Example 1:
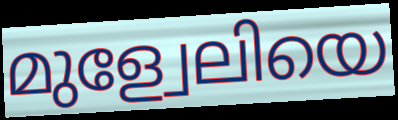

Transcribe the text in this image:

മുള്വേലിയെ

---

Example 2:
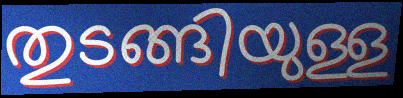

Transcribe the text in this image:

തുടങ്ങിയുള്ള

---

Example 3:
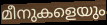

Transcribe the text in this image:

മീനുകളെയും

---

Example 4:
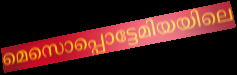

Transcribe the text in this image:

മെസൊപ്പൊട്ടേമിയയിലെ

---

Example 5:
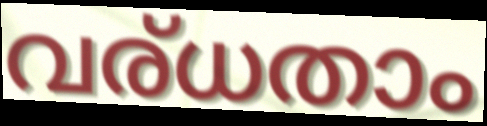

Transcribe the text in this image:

വര്ധതാം